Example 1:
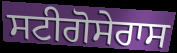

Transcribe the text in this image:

ਸਟੀਗੋਸੇਰਾਸ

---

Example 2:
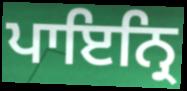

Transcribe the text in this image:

ਪਾਇਨ੍ਰਿ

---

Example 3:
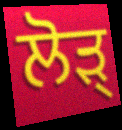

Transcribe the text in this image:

ਲੋੜ੍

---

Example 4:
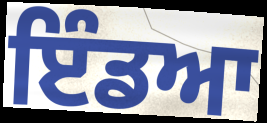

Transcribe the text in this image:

ਇੰਡਆ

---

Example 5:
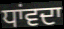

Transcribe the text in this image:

ਧਾਂਵਦਾ